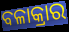
ବଳାକ୍ରାର